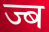
ज्ब